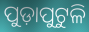
ପୁଡ଼ାପୁଟୁଳି